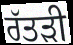
ਰੱਤੜੀ